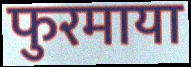
फुरमाया